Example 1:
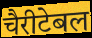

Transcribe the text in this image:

चैरीटेबल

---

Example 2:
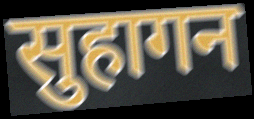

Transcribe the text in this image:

सुहागन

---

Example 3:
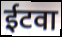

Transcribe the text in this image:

ईटवा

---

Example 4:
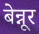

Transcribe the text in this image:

बेन्नूर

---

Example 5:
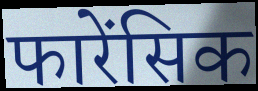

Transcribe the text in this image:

फारेंसिक